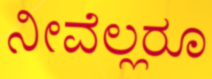
ನೀವೆಲ್ಲರೂ